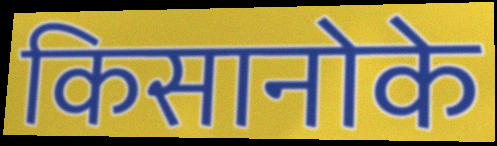
किसानोके